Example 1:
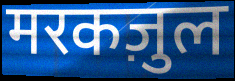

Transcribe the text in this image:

मरकज़ुल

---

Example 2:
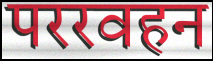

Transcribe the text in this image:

पररवहन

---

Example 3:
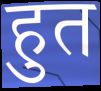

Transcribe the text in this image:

हुत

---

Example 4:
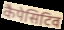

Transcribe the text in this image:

कैपेसिटिव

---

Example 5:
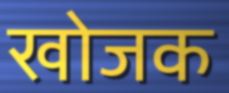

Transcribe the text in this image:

खोजक